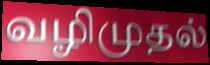
வழிமுதல்